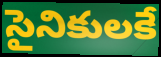
సైనికులకే